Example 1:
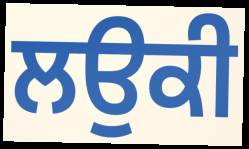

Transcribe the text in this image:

ਲਉਕੀ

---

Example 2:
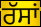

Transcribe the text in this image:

ਰੱਸਾਂ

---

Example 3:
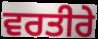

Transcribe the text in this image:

ਵਰਤੀਰੇ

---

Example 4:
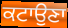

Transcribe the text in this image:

ਕਟਾਉਣਾ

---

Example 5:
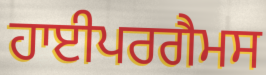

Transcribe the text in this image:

ਹਾਈਪਰਗੈਮਸ